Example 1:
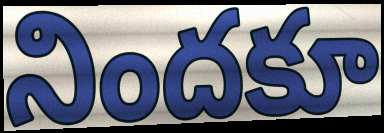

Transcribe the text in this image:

నిందకూ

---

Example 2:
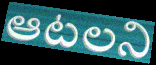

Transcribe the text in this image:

ఆటలని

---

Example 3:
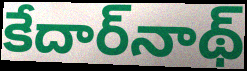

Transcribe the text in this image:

కేదార్‌నాథ్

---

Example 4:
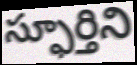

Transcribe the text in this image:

స్ఫూర్తిని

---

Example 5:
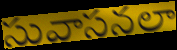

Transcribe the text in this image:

సువాసనలా